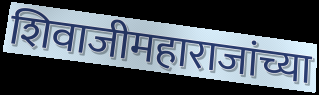
शिवाजीमहाराजांच्या